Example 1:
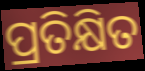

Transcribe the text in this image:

ପ୍ରତିକ୍ଷିତ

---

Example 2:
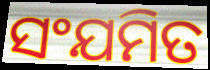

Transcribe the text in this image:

ସଂଯମିତ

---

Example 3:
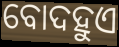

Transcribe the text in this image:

ବୋଦହୁଏ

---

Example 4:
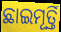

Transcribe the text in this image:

ଛାଇମୂର୍ତ୍ତି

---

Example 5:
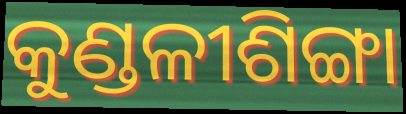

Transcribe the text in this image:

କୁଣ୍ଡଳୀଶିଙ୍ଗା